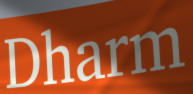
Dharm